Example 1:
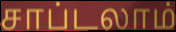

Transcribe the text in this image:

சாப்டலாம்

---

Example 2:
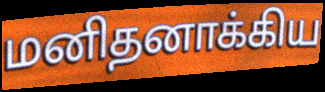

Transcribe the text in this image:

மனிதனாக்கிய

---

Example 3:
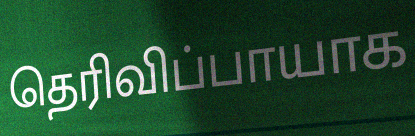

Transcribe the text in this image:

தெரிவிப்பாயாக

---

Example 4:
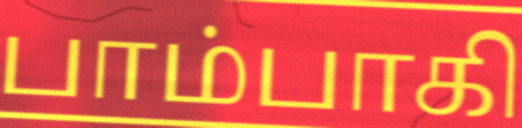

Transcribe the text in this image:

பாம்பாகி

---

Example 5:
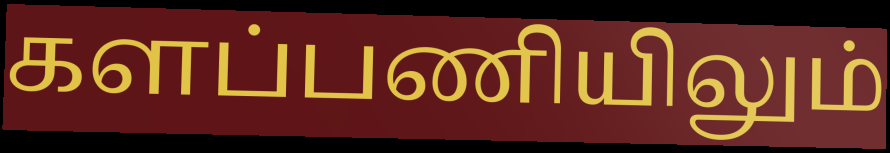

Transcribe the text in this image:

களப்பணியிலும்